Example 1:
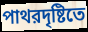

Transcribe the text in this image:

পাথরদৃষ্টিতে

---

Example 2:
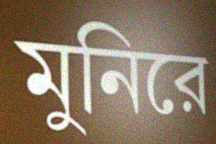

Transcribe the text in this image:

মুনিরে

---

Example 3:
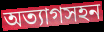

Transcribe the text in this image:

অত্যাগসহন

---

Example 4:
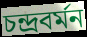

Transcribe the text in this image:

চন্দ্রবর্মন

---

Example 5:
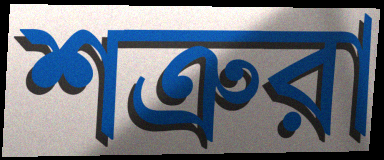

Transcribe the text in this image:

শত্রুরা